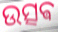
ଉତ୍ସଵ